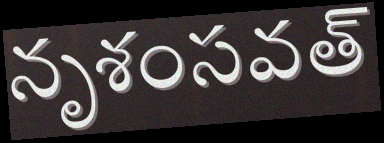
నృశంసవత్